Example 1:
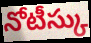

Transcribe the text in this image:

నోటీస్కు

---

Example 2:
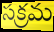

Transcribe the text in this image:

సక్రమ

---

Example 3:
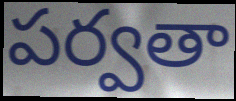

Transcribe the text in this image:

పర్వతా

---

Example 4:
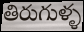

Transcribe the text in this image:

తిరుగుళ్ళ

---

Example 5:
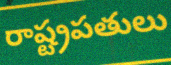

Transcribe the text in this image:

రాష్ట్రపతులు